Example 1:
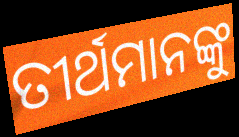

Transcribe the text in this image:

ତୀର୍ଥମାନଙ୍କୁ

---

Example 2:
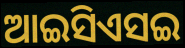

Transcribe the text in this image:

ଆଇସିଏସଇ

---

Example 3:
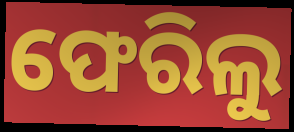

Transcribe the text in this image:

ଫେରିଲୁ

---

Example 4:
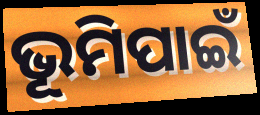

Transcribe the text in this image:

ଭୂମିପାଇଁ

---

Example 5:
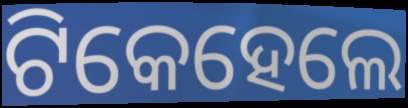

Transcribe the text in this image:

ଟିକେହେଲେ